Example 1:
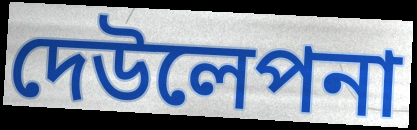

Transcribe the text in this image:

দেউলেপনা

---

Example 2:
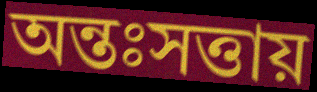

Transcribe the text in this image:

অন্তঃসত্তায়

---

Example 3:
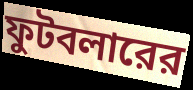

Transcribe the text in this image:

ফুটবলারের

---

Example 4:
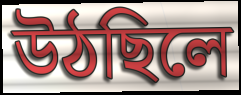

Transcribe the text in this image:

উঠছিলে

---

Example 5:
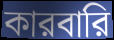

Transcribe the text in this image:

কারবারি